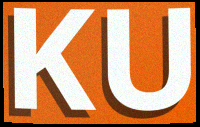
KU